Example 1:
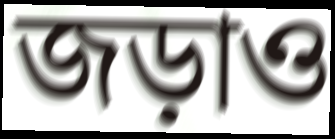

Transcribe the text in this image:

জড়াও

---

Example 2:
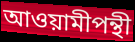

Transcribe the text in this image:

আওয়ামীপন্থী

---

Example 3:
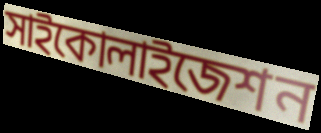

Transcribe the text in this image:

সাইকোলাইজেশন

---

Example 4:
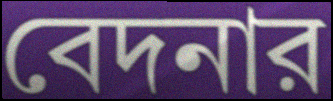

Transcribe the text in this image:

বেদনার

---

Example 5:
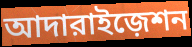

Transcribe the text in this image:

আদারাইজ়েশন